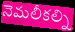
నెమలీకల్ని